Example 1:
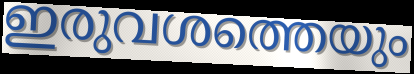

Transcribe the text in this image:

ഇരുവശത്തെയും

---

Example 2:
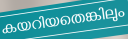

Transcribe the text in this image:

കയറിയതെങ്കിലും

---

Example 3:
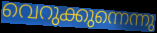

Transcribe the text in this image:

വെറുക്കുന്നെന്നു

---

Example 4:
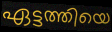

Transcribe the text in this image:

ഏട്ടത്തിയെ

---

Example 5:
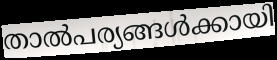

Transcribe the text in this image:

താൽപര്യങ്ങൾക്കായി